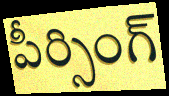
పీర్సింగ్